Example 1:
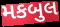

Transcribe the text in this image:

મકબુલ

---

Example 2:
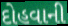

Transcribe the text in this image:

દોહવાની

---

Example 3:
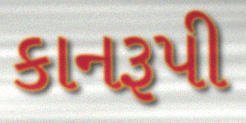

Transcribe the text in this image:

કાનરૂપી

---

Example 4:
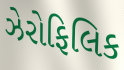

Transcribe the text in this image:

ઝેરોફિલિક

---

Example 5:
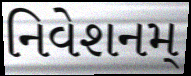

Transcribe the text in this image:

નિવેશનમ્